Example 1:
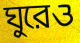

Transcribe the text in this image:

ঘুরেও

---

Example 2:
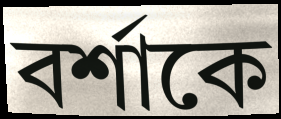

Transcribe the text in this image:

বর্শাকে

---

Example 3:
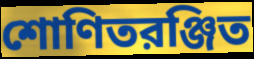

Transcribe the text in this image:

শোণিতরঞ্জিত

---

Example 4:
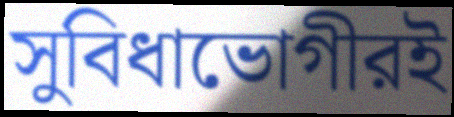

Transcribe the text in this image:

সুবিধাভোগীরই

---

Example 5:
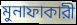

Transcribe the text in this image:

মুনাফাকারী